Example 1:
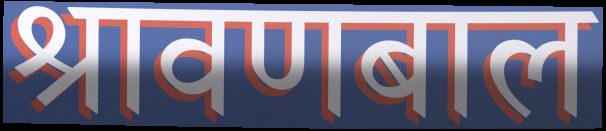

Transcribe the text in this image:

श्रावणबाल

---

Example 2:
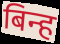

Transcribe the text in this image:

बिन्ह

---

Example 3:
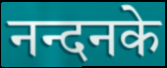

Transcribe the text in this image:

नन्दनके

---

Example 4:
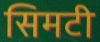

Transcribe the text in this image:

सिमटी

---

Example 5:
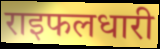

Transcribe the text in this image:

राइफलधारी